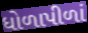
ધોળાપીળાં